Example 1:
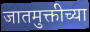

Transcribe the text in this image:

जातमुक्तीच्या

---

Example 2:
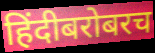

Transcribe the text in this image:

हिंदीबरोबरच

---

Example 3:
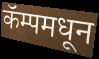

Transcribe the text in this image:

कॅम्पमधून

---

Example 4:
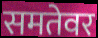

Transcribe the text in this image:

समतेवर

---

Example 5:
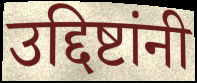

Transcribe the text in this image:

उद्दिष्टांनी